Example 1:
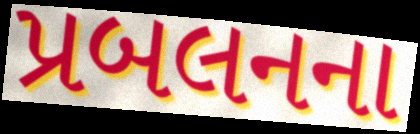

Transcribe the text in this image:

પ્રબલનના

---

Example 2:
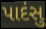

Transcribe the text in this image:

પાદંસુ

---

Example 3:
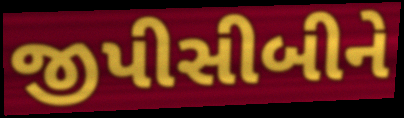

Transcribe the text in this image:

જીપીસીબીને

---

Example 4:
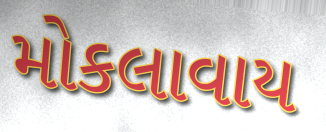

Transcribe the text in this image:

મોકલાવાય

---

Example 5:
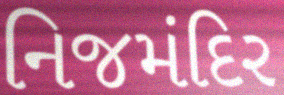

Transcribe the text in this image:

નિજમંદિર